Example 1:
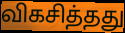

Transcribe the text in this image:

விகசித்தது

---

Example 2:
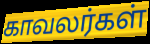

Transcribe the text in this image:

காவலர்கள்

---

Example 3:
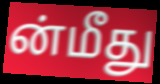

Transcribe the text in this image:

ன்மீது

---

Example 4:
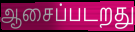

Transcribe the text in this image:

ஆசைப்படறது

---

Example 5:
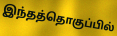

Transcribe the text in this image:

இந்தத்தொகுப்பில்